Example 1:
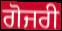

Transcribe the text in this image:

ਗੋਜਰੀ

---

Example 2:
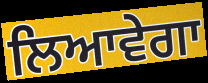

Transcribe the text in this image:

ਲਿਆਵੇਗਾ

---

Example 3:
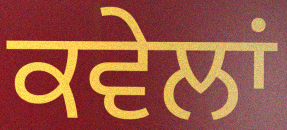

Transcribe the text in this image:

ਕਵੇਲਾਂ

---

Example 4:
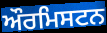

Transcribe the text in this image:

ਔਰਮਿਸਟਨ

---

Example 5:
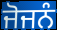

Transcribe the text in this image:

ਜੋਜਨੰ